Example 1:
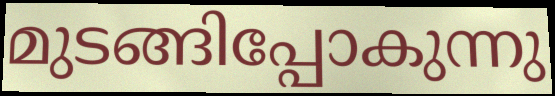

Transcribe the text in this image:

മുടങ്ങിപ്പോകുന്നു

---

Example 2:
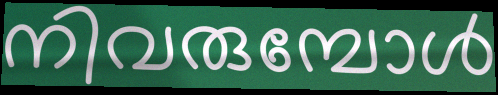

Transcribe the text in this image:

നിവരുമ്പോൾ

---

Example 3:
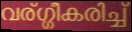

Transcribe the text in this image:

വര്ഗ്ഗീകരിച്ച്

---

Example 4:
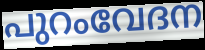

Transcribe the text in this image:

പുറംവേദന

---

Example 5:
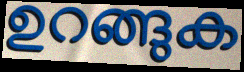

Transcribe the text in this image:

ഉറങ്ങുക